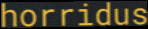
horridus